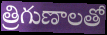
త్రిగుణాలతో